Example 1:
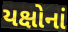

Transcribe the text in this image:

યક્ષોનાં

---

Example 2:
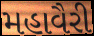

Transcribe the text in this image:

મહાવૈરી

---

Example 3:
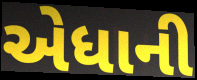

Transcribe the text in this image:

એધાની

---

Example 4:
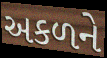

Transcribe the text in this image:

અકળને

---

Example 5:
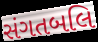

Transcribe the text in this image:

સંગતબલિ